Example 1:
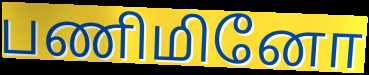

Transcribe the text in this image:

பணிமினோ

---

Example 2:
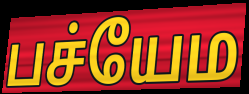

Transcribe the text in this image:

பச்யேம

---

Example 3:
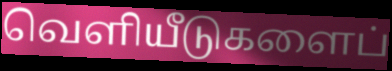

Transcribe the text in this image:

வெளியீடுகளைப்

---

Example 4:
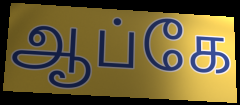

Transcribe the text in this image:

ஆப்கே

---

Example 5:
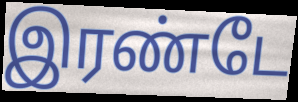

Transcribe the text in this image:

இரண்டே